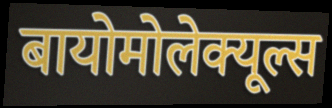
बायोमोलेक्यूल्स